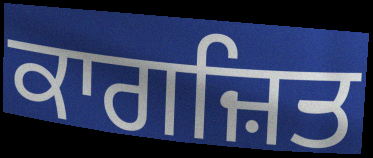
ਕਾਗਜ਼ਿਤ